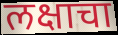
लक्षाचा